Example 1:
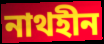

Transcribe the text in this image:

নাথহীন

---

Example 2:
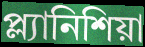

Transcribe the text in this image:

প্ল্যানিশিয়া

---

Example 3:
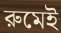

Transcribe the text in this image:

রুমেই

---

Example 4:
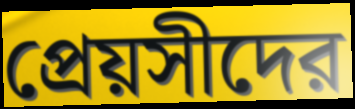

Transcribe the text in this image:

প্রেয়সীদের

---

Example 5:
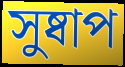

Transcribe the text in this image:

সুষ্বাপ